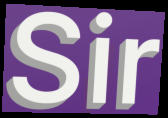
Sir